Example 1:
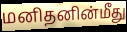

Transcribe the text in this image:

மனிதனின்மீது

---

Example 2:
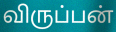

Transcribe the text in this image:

விருப்பன்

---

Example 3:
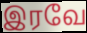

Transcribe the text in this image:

இரவே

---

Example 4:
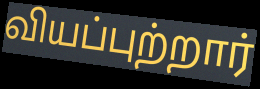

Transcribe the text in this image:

வியப்புற்றார்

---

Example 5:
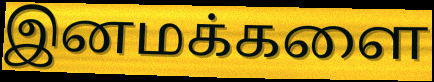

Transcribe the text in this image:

இனமக்களை